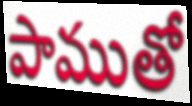
పాముతో